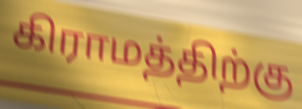
கிராமத்திற்கு